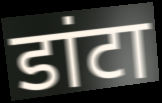
डांटा